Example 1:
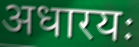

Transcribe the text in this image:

अधारयः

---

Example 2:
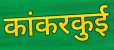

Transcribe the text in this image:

कांकरकुई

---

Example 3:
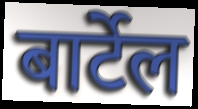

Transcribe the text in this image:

बार्टेल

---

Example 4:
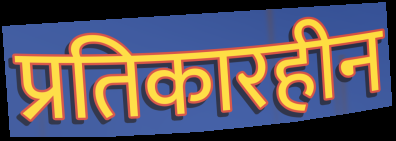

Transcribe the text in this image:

प्रतिकारहीन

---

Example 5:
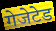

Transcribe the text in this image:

गेजेटेड